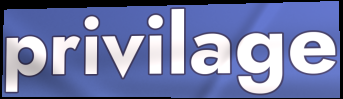
privilage